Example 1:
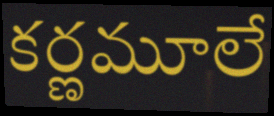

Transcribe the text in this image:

కర్ణమూలే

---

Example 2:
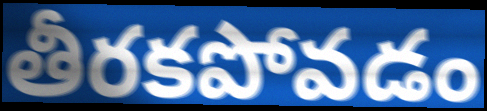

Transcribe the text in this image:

తీరకపోవడం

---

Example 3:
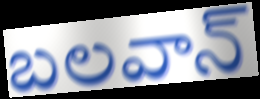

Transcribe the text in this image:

బలవాన్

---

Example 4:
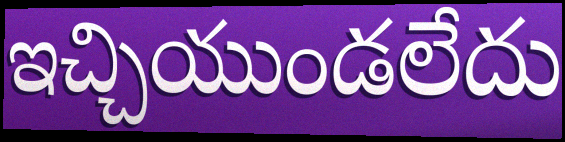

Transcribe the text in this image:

ఇచ్చియుండలేదు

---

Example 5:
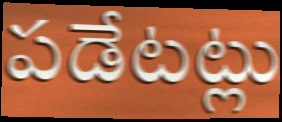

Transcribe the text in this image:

పడేటట్లు